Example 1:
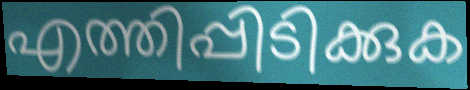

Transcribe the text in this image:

എത്തിപ്പിടിക്കുക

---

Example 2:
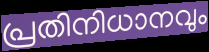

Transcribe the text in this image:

പ്രതിനിധാനവും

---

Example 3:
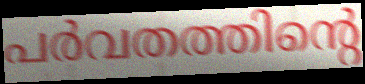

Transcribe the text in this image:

പർവതത്തിന്റെ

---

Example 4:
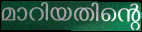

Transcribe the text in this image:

മാറിയതിന്റെ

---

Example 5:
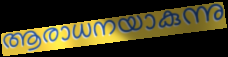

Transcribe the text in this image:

ആരാധനയാകുന്നു